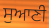
ਸੁਆਣੀ